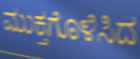
ಮುಕ್ತಗೊಳಿಸಿದ